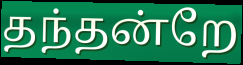
தந்தன்றே